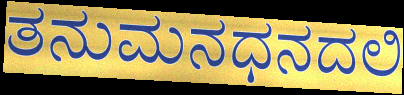
ತನುಮನಧನದಲಿ